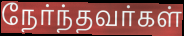
நேர்ந்தவர்கள்